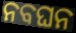
ନବଘନ